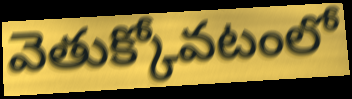
వెతుక్కోవటంలో